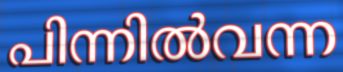
പിന്നിൽവന്ന